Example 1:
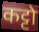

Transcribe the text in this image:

कट्टो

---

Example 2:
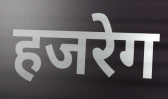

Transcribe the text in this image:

हजरेग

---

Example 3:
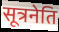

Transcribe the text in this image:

सूत्रनेति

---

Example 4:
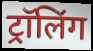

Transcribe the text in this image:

ट्रॉलिंग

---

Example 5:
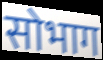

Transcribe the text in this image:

सोभाग